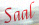
Saal